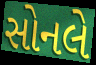
સોનલે